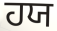
ਹਯ